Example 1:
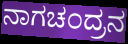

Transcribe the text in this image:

ನಾಗಚಂದ್ರನ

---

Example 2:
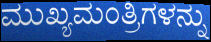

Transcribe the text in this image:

ಮುಖ್ಯಮಂತ್ರಿಗಳನ್ನು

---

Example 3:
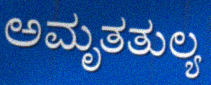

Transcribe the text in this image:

ಅಮೃತತುಲ್ಯ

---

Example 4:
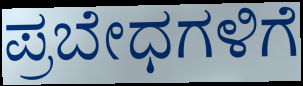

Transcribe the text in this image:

ಪ್ರಬೇಧಗಳಿಗೆ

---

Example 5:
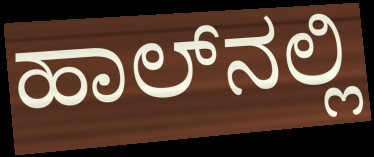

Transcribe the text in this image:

ಹಾಲ್‌ನಲ್ಲಿ